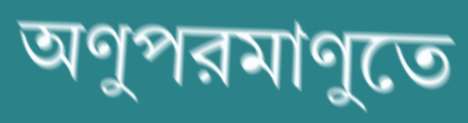
অণুপরমাণুতে